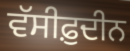
ਵੱਸੀਫ਼ੁਦੀਨ